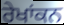
ਰੇਖਾਂਕਨ